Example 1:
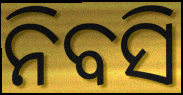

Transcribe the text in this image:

ନିବସି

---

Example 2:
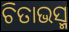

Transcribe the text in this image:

ଚିତାଭସ୍ମ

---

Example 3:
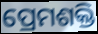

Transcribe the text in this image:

ପ୍ରେମଶକ୍ତି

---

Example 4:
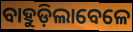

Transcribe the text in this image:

ବାହୁଡ଼ିଲାବେଳେ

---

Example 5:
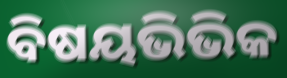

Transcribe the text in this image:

ବିଷୟଭିଭିକ